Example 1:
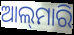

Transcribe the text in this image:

ଆଲ୍‌ମାରି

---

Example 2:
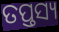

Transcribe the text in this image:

ତପ୍ତସ୍ୟ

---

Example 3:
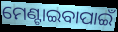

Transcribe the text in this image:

ମେଣ୍ଟାଇବାପାଇଁ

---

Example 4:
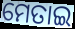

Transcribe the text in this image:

ମେତାଇ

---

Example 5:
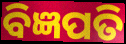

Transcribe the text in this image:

ବିଜ୍ଞପତି